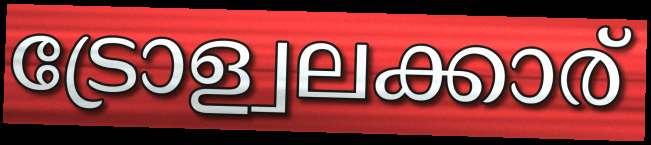
ട്രോള്വലക്കാര്